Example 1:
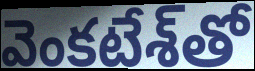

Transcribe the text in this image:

వెంకటేశ్‌తో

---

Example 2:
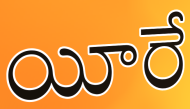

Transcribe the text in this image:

యీరే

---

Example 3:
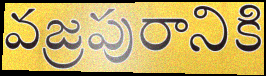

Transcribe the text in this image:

వజ్రపురానికి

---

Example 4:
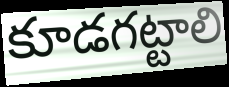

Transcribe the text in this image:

కూడగట్టాలి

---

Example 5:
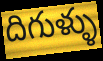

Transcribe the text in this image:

దిగుళ్ళు